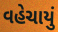
વહેચાયું